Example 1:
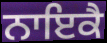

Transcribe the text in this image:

ਨਾਇਕੈ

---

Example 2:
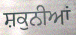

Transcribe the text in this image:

ਸ਼ਕੁਨੀਆਂ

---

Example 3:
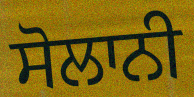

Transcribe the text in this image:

ਸੋਲਾਨੀ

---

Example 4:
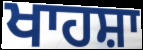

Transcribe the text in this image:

ਖਾਹਸ਼ਾ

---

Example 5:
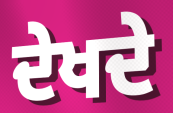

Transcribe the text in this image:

ਦੇਖਦੇ